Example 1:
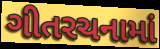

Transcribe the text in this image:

ગીતરચનામાં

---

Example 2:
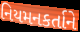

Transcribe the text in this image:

નિયમનકર્તાને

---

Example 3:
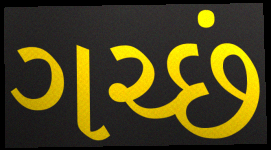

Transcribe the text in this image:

ગચ્છં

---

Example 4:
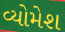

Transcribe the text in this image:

વ્યોમેશ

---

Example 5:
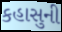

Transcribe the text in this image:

કહાસુની